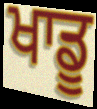
ਖਾਡੂ